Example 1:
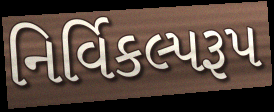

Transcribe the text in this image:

નિર્વિકલ્પરૂપ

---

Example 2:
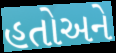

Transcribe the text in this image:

હતોઅને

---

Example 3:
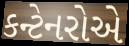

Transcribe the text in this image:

કન્ટેનરોએ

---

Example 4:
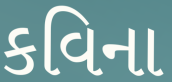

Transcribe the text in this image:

કવિના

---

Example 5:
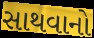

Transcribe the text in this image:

સાથવાનો